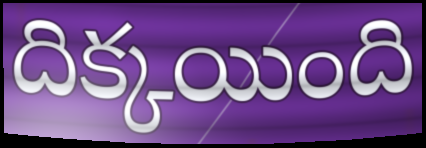
దిక్కయింది